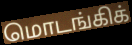
மொடங்கிக்